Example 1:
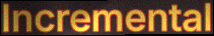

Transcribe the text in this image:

Incremental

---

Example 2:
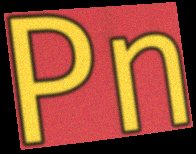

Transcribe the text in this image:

Pn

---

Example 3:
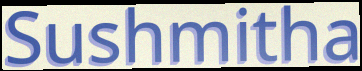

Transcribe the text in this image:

Sushmitha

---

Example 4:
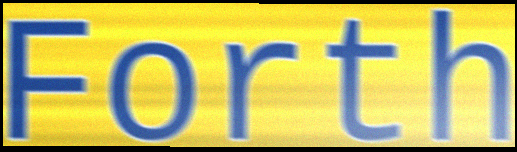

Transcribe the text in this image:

Forth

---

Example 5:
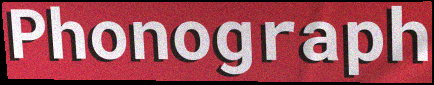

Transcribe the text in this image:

Phonograph